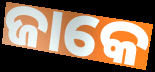
ଜାକେ